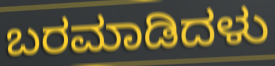
ಬರಮಾಡಿದಳು